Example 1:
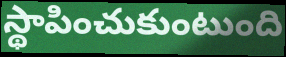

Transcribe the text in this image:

స్థాపించుకుంటుంది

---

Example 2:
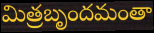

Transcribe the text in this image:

మిత్రబృందమంతా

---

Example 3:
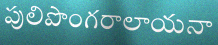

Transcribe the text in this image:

పులిపొంగరాలాయనా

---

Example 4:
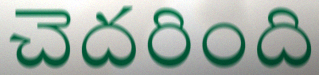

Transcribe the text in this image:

చెదరింది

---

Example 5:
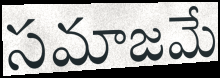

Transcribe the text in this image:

సమాజమే